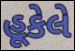
હૂકેલે